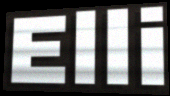
Elli